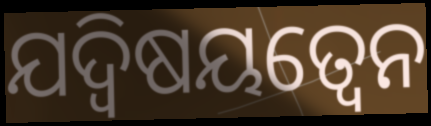
ଯଦ୍ଵିଷୟତ୍ଵେନ